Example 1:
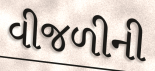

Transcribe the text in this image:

વીજળીની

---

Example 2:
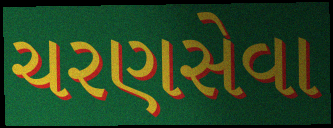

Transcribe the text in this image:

ચરણસેવા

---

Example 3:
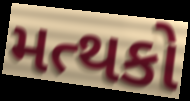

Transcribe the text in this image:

મત્થકો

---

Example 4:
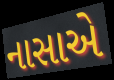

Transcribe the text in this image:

નાસાએ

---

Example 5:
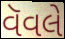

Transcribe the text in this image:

વૅવલે